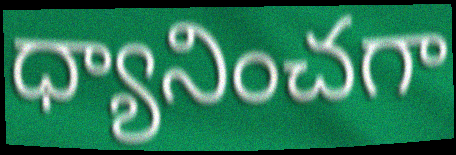
ధ్యానించగా